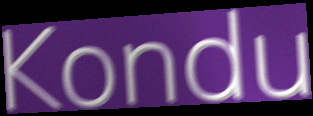
Kondu